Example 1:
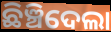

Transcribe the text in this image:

ଛିଞ୍ଚିଦେଲା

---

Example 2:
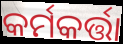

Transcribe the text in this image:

କର୍ମକର୍ତ୍ତା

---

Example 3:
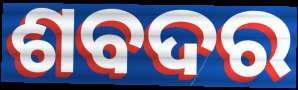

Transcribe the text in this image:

ଶବଦର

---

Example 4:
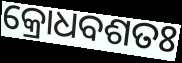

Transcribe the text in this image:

କ୍ରୋଧବଶତଃ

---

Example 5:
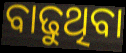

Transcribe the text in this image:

ବାଢୁଥିବା